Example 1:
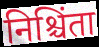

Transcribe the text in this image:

निश्चिंता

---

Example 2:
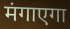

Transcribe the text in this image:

मंगाएगा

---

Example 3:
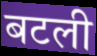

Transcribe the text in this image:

बटली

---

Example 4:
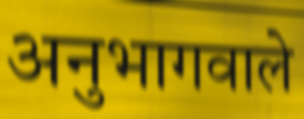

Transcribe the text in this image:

अनुभागवाले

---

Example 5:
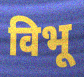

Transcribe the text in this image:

विभू